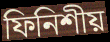
ফিনিশীয়